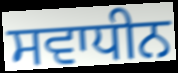
ਸਵਾਧੀਨ